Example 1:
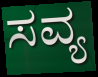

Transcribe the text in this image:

ಸವ್ಯ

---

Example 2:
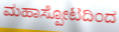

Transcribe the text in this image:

ಮಹಾಸ್ಪೋಟದಿಂದ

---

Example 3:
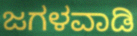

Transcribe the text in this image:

ಜಗಳವಾಡಿ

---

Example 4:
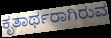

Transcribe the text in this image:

ಕೃತಾರ್ಥರಾಗಿರುವ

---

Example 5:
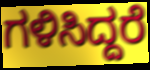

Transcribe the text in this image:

ಗಳಿಸಿದ್ದರೆ